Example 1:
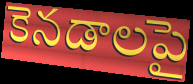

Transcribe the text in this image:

కెనడాలపై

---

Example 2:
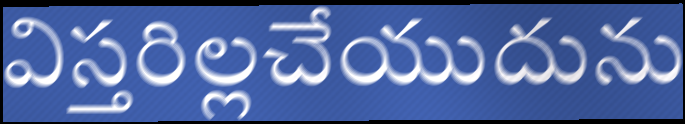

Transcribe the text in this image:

విస్తరిల్లచేయుదును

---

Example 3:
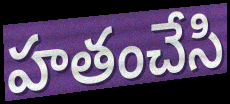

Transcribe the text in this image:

హతంచేసి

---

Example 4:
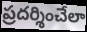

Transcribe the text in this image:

ప్రదర్శించేలా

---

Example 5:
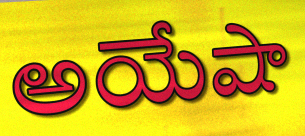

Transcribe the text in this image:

అయేషా